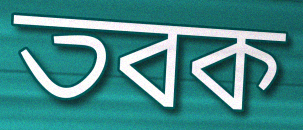
তবক